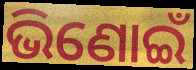
ଭିଣୋଇଁ